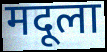
मदूला